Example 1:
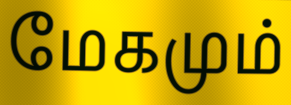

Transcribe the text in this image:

மேகமும்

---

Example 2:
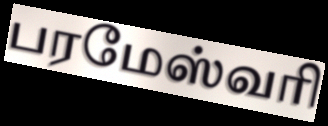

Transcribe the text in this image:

பரமேஸ்வரி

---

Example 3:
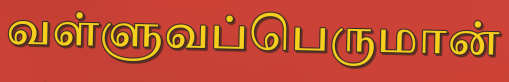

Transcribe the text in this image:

வள்ளுவப்பெருமான்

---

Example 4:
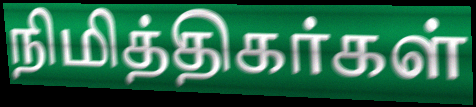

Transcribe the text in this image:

நிமித்திகர்கள்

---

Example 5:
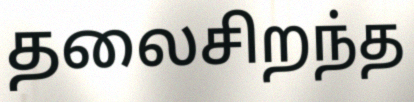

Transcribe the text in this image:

தலைசிறந்த